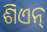
ଶିଏନ୍